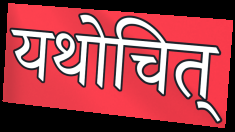
यथोचित्